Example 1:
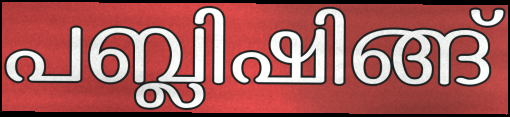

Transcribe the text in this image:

പബ്ലിഷിങ്ങ്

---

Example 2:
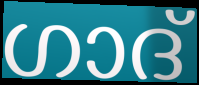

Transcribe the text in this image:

ഗാദ്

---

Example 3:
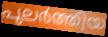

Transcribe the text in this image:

പുലർത്തിയ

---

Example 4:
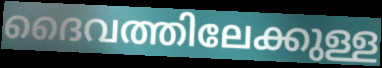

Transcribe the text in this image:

ദൈവത്തിലേക്കുള്ള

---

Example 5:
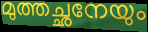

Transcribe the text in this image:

മുത്തച്ഛനേയും